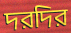
দরদির